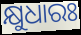
କ୍ଷୁଧାରଃ